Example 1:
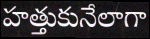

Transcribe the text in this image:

హత్తుకునేలాగా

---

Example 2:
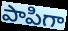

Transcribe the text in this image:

పాపిగా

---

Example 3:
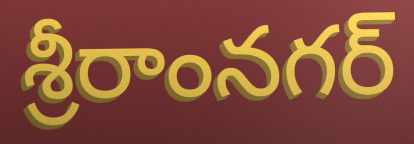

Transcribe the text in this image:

శ్రీరాంనగర్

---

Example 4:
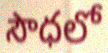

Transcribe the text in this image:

సౌధలో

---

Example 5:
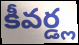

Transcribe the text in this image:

కీవర్డ్ల